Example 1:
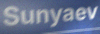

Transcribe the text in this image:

Sunyaev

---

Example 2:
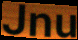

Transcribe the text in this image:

Jnu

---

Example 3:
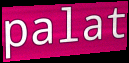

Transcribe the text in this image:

palat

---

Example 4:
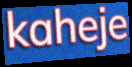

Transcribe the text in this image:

kaheje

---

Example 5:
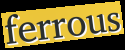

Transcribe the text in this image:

ferrous